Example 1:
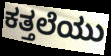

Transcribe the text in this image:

ಕತ್ತಲೆಯು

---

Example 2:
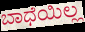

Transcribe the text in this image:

ಬಾಧೆಯಿಲ್ಲ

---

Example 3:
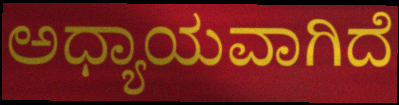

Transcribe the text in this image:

ಅಧ್ಯಾಯವಾಗಿದೆ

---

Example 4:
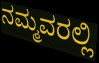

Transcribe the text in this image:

ನಮ್ಮವರಲ್ಲಿ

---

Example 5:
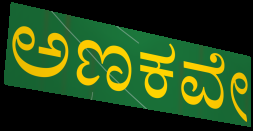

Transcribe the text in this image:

ಅಣಕವೇ